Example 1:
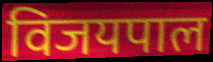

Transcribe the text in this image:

विजयपाल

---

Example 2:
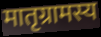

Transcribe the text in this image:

मातृग्रामस्य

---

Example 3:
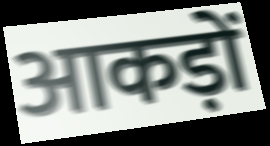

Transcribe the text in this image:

आकड़ों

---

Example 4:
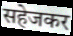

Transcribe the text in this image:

सहेजकर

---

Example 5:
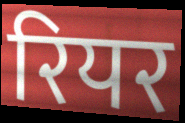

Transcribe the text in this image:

रियर